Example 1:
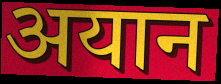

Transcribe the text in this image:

अयान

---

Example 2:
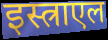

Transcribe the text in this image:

इस्त्राएल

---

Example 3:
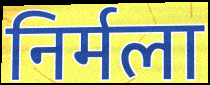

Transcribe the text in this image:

निर्मला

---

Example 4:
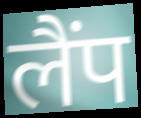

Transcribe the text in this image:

लैंप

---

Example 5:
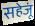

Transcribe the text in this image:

सहेजूं